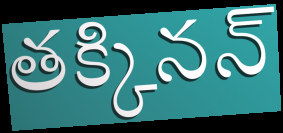
తక్కినన్